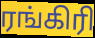
ரங்கிரி